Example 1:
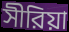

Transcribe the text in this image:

সীরিয়া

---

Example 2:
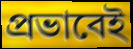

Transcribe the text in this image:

প্রভাবেই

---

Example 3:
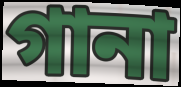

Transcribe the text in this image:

গানা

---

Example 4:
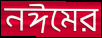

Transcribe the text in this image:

নঈমের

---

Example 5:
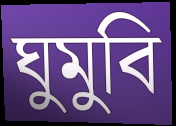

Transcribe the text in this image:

ঘুমুবি